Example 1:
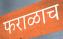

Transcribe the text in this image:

फराळाच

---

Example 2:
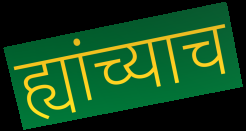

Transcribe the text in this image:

ह्यांच्याच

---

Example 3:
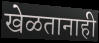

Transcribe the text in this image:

खेळतानाही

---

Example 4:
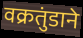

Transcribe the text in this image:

वक्रतुंडाने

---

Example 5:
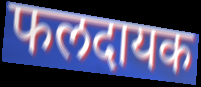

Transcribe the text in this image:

फलदायक